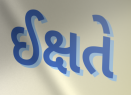
ઈક્ષતે